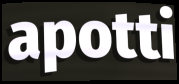
apotti